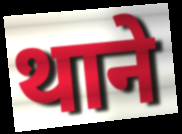
थाने